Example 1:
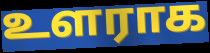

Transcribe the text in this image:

உளராக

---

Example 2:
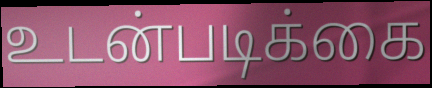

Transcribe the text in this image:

உடன்படிக்கை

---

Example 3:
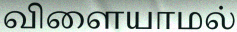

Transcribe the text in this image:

விளையாமல்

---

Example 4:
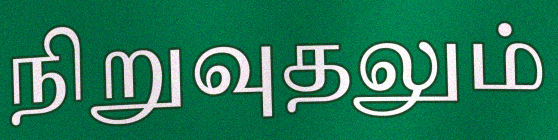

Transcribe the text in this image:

நிறுவுதலும்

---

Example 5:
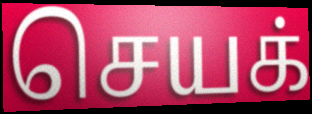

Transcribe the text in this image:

செயக்